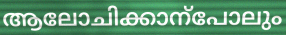
ആലോചിക്കാന്പോലും